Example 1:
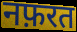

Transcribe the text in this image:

नफ़रत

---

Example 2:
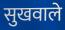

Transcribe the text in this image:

सुखवाले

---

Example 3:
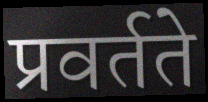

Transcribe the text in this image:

प्रवर्तते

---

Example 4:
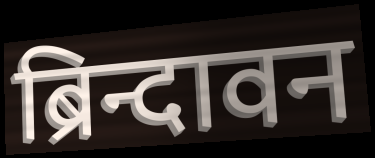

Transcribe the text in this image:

ब्रिन्दावन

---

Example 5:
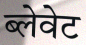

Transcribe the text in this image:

ब्लेवेट